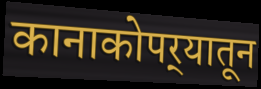
कानाकोपर्यातून